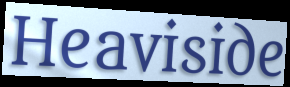
Heaviside